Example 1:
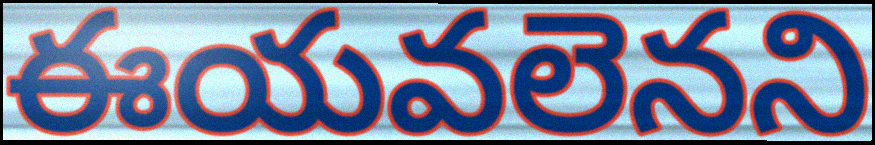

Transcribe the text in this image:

ఈయవలెనని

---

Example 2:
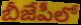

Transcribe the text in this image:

బీజేపీలో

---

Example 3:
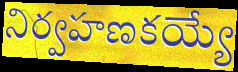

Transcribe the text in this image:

నిర్వహణకయ్యే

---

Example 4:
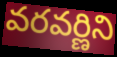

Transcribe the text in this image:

వరవర్ణిని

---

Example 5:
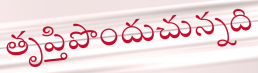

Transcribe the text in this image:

తృప్తిపొందుచున్నది